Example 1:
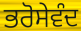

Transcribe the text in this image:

ਭਰੋਸੇਵੰਦ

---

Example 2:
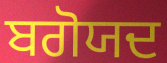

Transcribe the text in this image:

ਬਗੋਯਦ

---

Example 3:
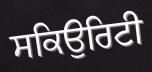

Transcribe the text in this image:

ਸਕਿਉਰਿਟੀ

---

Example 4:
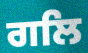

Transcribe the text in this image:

ਗਲਿ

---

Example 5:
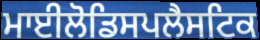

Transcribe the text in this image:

ਮਾਈਲੋਡਿਸਪਲੈਸਟਿਕ